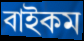
বাইকম